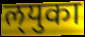
ल्युका